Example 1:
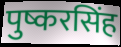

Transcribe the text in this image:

पुष्करसिंह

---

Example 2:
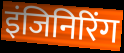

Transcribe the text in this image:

इंजिनिरिंग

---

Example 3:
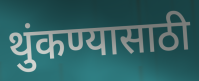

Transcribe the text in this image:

थुंकण्यासाठी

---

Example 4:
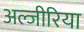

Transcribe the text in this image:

अल्जीरिया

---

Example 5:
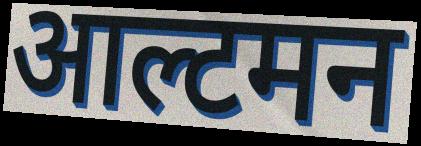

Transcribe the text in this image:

आल्टमन